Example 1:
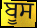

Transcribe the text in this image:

ਬੂਸ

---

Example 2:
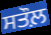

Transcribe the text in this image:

ਸਤੌਲ਼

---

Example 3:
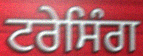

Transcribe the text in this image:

ਟਰੇਸਿੰਗ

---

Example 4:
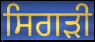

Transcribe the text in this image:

ਸਿਗੜੀ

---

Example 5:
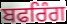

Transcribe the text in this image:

ਬਫਰਿੰਗ